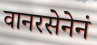
वानरसेनेनं